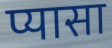
प्यासा